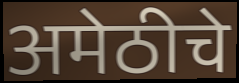
अमेठीचे